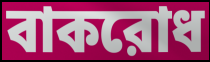
বাকরোধ